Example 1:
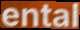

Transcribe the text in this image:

ental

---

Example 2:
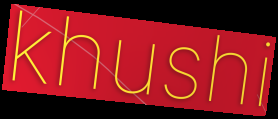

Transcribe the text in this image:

khushi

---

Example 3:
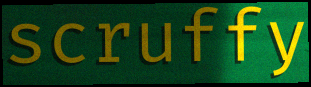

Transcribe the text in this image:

scruffy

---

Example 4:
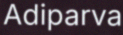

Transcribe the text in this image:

Adiparva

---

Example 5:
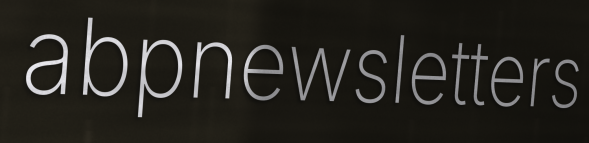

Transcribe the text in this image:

abpnewsletters